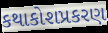
કથાકોશપ્રકરણ